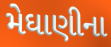
મેઘાણીના